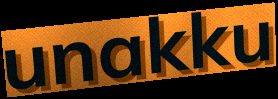
unakku